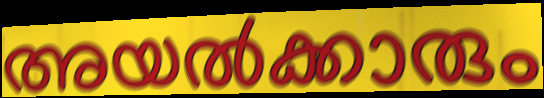
അയൽക്കാരും